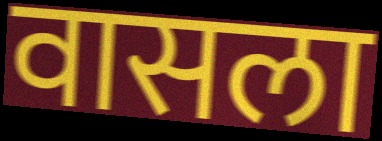
वासला